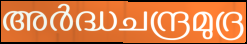
അർദ്ധചന്ദ്രമുദ്ര